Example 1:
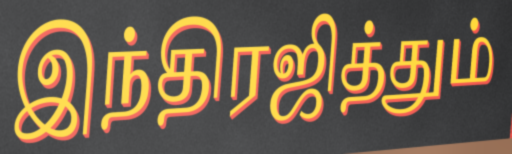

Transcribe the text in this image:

இந்திரஜித்தும்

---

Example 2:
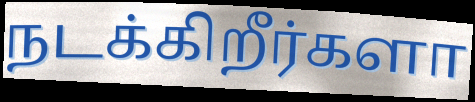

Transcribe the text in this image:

நடக்கிறீர்களா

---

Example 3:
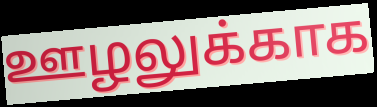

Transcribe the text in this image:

ஊழலுக்காக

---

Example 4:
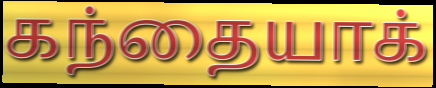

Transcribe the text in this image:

கந்தையாக்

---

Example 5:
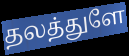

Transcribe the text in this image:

தலத்துளே